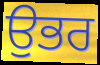
ਉਭਰ